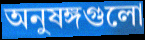
অনুষঙ্গগুলো